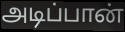
அடிப்பான்